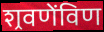
श्रवणेंविण